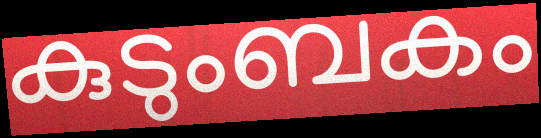
കുടുംബകം